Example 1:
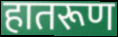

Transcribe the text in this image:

हातरूण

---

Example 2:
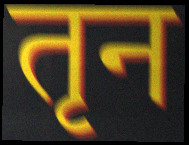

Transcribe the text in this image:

तृन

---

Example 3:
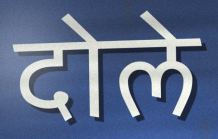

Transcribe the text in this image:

दोले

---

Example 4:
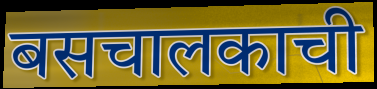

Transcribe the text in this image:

बसचालकाची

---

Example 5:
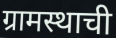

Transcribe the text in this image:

ग्रामस्थाची